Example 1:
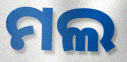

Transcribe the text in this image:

ମଲ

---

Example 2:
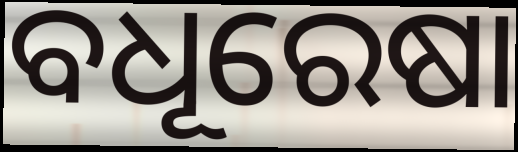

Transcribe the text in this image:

ବଧୂରେଷା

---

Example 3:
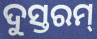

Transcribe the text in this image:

ଦୁସ୍ତରମ୍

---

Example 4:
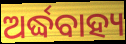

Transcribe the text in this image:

ଅର୍ଦ୍ଧବାହ୍ୟ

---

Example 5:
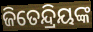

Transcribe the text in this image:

ଜିତେନ୍ଦ୍ରିୟଙ୍କ